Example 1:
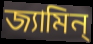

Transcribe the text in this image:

জ্যামিন্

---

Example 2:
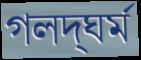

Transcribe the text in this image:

গলদ্‌ঘর্ম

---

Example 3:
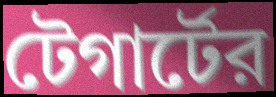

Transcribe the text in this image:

টেগার্টের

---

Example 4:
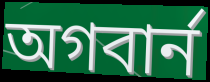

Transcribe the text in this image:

অগবার্ন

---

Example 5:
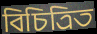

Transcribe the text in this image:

বিচিত্রিত